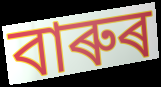
বাৰুৰ